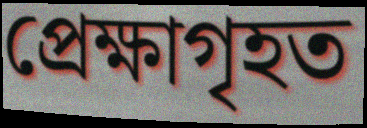
প্ৰেক্ষাগৃহত